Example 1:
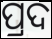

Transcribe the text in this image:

ପ୍ରଦ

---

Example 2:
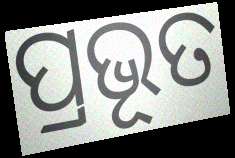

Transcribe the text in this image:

ପ୍ରଭୂତ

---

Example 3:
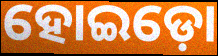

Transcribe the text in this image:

ହୋଇଡ଼ୋ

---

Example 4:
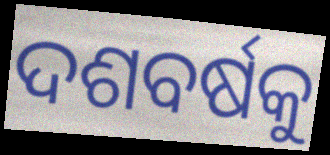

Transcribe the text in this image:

ଦଶବର୍ଷକୁ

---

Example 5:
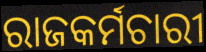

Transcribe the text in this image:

ରାଜକର୍ମଚାରୀ